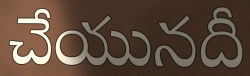
చేయునదీ